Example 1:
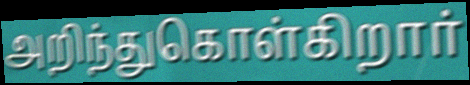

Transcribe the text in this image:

அறிந்துகொள்கிறார்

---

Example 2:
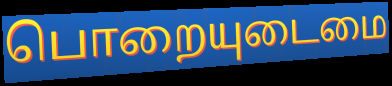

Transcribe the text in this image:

பொறையுடைமை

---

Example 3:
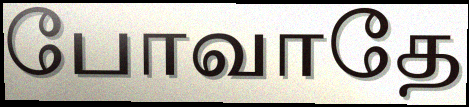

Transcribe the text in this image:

போவாதே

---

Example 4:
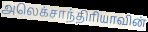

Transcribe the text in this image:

அலெக்சாந்திரியாவின்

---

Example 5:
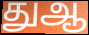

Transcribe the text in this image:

துஆ